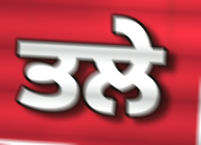
ਤਲੇ